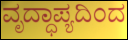
ವೃದ್ಧಾಪ್ಯದಿಂದ